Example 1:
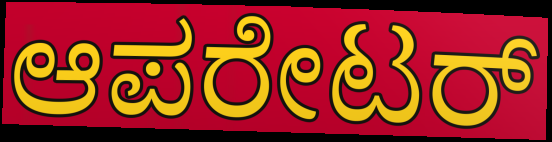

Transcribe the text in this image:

ಆಪರೇಟರ್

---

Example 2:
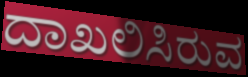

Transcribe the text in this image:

ದಾಖಲಿಸಿರುವ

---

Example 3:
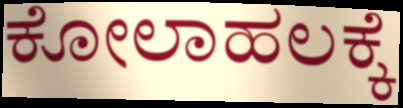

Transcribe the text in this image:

ಕೋಲಾಹಲಕ್ಕೆ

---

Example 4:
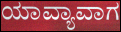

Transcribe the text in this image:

ಯಾವ್ಯಾವಾಗ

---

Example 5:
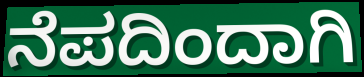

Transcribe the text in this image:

ನೆಪದಿಂದಾಗಿ